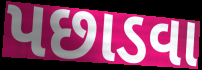
પછાડવા